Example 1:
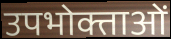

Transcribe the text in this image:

उपभोक्ताओं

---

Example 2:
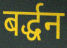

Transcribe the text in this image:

बर्द्धन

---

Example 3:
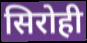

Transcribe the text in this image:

सिरोही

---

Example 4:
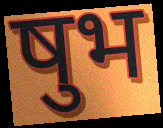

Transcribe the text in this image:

षुभ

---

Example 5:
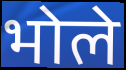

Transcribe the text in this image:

भोले